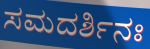
ಸಮದರ್ಶಿನಃ